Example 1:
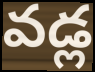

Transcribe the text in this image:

వడ్ల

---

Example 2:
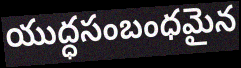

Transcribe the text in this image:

యుద్ధసంబంధమైన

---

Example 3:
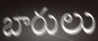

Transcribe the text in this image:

బారులు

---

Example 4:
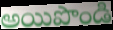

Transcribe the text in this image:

అయిపొండి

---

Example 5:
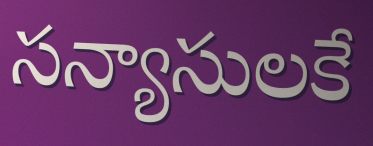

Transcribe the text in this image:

సన్యాసులకే